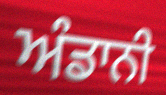
ਅੰਡਾਨੀ